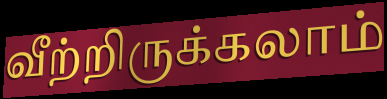
வீற்றிருக்கலாம்